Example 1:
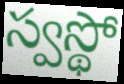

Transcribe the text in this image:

స్వస్థో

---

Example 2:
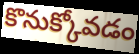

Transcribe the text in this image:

కొనుక్కోవడం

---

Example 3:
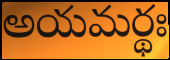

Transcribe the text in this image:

అయమర్థః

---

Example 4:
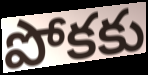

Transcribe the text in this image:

పోకకు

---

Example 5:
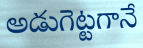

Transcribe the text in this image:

అడుగెట్టగానే